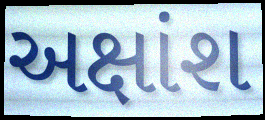
અક્ષાંશ